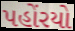
પહોંરયો